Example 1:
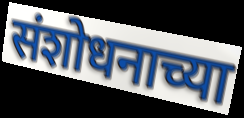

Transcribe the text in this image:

संशोधनाच्या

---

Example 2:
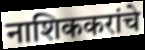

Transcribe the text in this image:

नाशिककरांचे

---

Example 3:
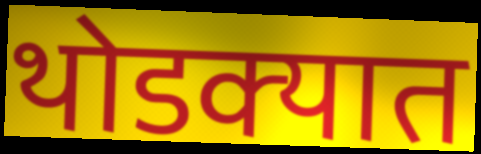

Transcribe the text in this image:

थोडक्‍यात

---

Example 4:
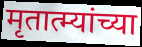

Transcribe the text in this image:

मृतात्म्यांच्या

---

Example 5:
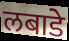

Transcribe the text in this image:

लबाडे